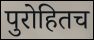
पुरोहितच